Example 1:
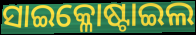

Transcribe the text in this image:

ସାଇକ୍ଳୋଷ୍ଟାଇଲ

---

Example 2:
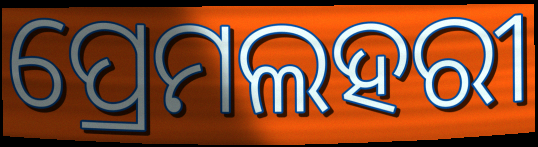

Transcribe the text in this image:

ପ୍ରେମଲହରୀ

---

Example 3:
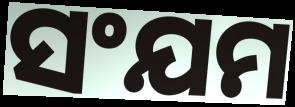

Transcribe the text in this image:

ସଂଯମ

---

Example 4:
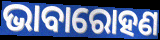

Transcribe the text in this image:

ଭାବାରୋହଣ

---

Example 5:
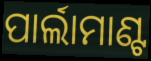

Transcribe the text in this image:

ପାର୍ଲାମାଣ୍ଟ